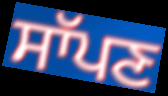
ਸਾੱਪਣ